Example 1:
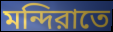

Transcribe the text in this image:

মন্দিরাতে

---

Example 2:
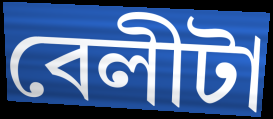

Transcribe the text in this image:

বেলীটা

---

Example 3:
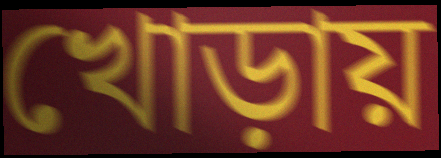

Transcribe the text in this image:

খোড়ায়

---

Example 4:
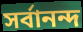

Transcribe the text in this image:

সর্বানন্দ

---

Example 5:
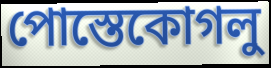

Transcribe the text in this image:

পোস্তেকোগলু